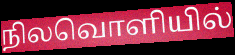
நிலவொளியில்